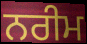
ਨਰੀਮ